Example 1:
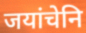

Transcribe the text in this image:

जयांचेनि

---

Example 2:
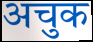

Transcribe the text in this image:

अचुक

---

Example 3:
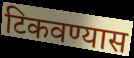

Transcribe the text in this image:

टिकवण्यास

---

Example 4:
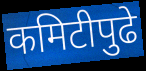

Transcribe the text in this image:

कमिटीपुढे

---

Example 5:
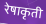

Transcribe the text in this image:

रेषाकृती